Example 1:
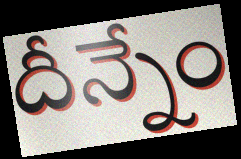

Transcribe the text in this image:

దీన్నేం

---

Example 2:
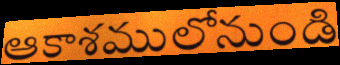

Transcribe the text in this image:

ఆకాశములోనుండి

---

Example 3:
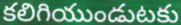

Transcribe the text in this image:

కలిగియుండుటకు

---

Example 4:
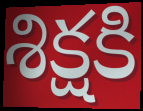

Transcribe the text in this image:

శిక్షకి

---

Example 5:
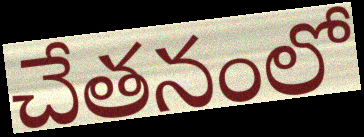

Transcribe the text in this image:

చేతనంలో